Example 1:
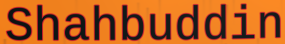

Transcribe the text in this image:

Shahbuddin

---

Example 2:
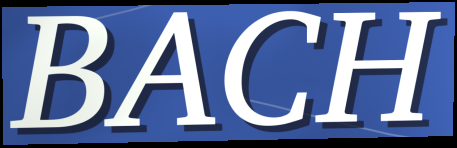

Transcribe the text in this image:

BACH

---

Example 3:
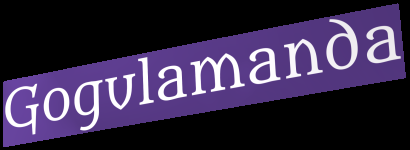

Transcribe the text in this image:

Gogulamanda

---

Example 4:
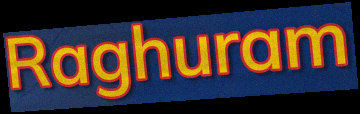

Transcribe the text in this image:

Raghuram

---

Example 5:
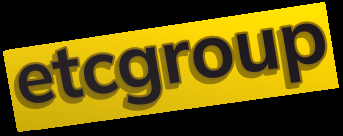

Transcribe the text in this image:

etcgroup